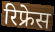
रिफ्रेस